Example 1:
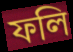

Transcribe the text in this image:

ফলি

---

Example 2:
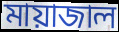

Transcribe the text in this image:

মায়াজাল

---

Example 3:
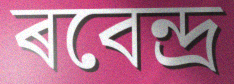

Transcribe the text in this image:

ৰবেন্দ্ৰ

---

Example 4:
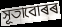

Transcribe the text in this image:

সূতাবোৰৰ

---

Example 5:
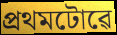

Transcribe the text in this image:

প্ৰথমটোৱে